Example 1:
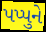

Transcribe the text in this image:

પપ્પુને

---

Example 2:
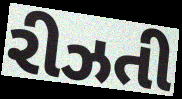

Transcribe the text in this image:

રીઝતી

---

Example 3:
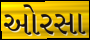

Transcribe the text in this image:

ઓરસા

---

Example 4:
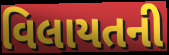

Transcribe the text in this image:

વિલાયતની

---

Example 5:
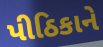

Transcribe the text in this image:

પીઠિકાને